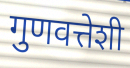
गुणवत्तेशी